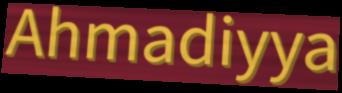
Ahmadiyya